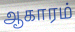
ஆகாரம்